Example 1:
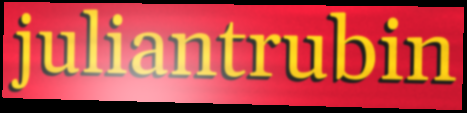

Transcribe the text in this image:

juliantrubin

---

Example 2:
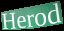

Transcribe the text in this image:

Herod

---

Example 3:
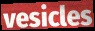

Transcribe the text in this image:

vesicles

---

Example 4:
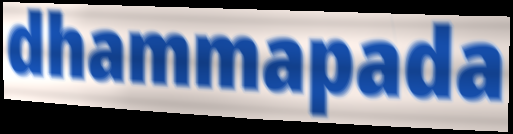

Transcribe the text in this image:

dhammapada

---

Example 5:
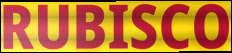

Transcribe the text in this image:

RUBISCO